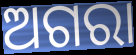
ଅଗରା